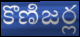
కొణిజర్ల